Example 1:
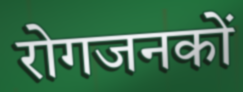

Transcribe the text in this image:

रोगजनकों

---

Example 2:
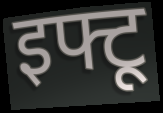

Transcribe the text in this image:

इफ्टू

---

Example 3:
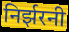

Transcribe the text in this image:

निर्झरनी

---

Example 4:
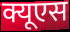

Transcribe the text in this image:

क्यूएस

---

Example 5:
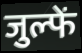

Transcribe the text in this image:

जुल्फें